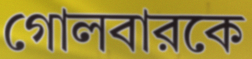
গোলবারকে